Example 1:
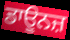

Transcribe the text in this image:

ਡਾਊਨਜ਼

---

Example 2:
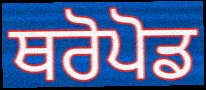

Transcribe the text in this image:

ਥਰੋਪੋਡ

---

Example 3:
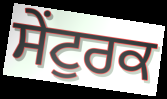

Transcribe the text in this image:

ਸੇਂਟੁਰਕ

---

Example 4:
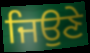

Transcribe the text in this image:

ਜਿਉਣੇ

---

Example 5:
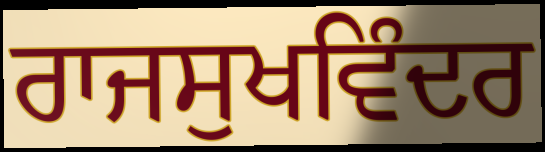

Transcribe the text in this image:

ਰਾਜਸੁਖਵਿੰਦਰ